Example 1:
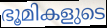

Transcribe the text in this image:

ഭൂമികളുടെ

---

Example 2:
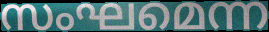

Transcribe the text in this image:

സംഘമെന്ന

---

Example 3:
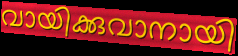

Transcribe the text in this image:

വായിക്കുവാനായി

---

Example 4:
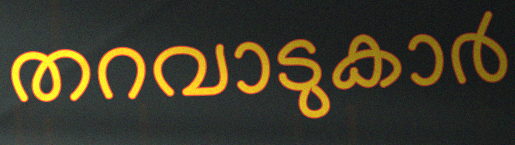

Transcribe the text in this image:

തറവാടുകാർ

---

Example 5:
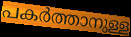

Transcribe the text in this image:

പകർത്താനുള്ള